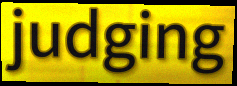
judging